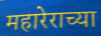
महारेराच्या